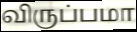
விருப்பமா